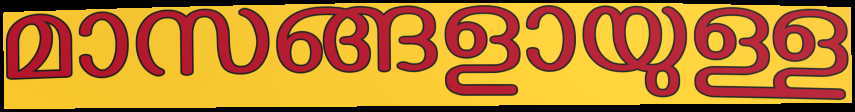
മാസങ്ങളായുള്ള